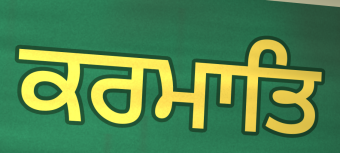
ਕਰਮਾਤਿ